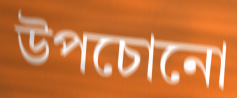
উপচোনো